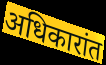
अधिकारांत